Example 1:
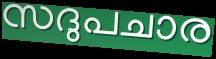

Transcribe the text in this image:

സദുപചാര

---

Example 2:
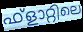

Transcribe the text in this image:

ഫ്ളാറ്റിലെ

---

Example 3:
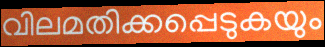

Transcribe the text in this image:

വിലമതിക്കപ്പെടുകയും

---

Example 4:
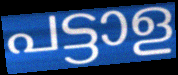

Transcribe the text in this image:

പട്ടാള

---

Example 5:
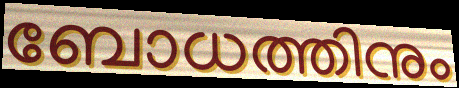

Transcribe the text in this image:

ബോധത്തിനും